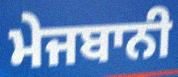
ਮੇਜਬਾਨੀ